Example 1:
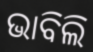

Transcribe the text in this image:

ଭାବିଲି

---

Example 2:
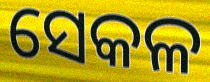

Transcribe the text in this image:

ସେକଳ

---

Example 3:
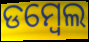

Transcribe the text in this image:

ଡମ୍ୱେଲ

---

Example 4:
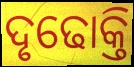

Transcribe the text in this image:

ଦୃଢୋକ୍ତି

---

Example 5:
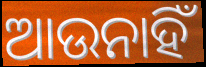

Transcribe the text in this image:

ଆଉନାହିଁ